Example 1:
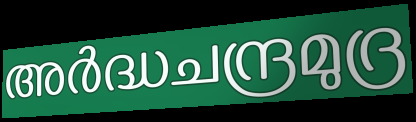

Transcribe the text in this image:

അർദ്ധചന്ദ്രമുദ്ര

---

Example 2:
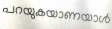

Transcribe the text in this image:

പറയുകയാണയാൾ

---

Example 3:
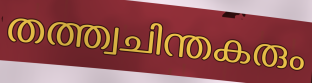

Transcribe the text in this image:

തത്ത്വചിന്തകരും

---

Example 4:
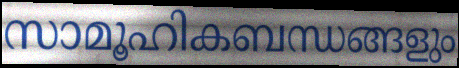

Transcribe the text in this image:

സാമൂഹികബന്ധങ്ങളും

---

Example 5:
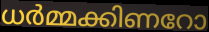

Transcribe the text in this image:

ധർമ്മക്കിണറോ